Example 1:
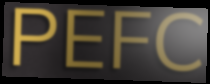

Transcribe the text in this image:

PEFC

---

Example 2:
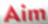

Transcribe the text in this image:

Aim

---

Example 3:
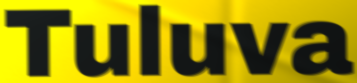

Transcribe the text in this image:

Tuluva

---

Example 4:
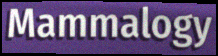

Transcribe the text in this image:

Mammalogy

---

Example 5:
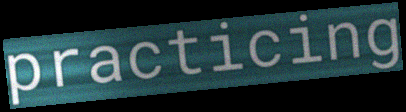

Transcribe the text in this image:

practicing